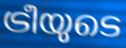
ട്രീയുടെ